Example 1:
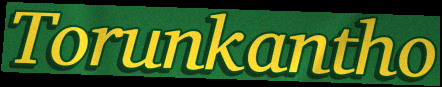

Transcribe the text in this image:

Torunkantho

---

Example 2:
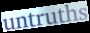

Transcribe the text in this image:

untruths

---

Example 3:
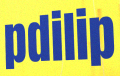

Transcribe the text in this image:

pdilip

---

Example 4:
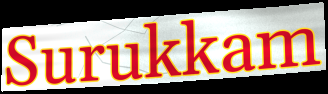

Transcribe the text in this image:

Surukkam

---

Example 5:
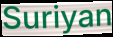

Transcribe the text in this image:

Suriyan